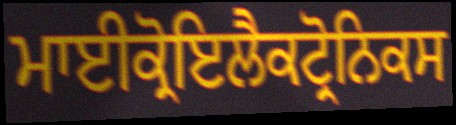
ਮਾਈਕ੍ਰੋਇਲੈਕਟ੍ਰੋਨਿਕਸ